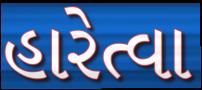
હારેત્વા